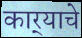
कार्याचे